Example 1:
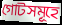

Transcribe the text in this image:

গোটসমূহে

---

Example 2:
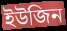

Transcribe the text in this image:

ইউজিন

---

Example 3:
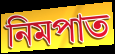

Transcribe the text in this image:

নিমপাত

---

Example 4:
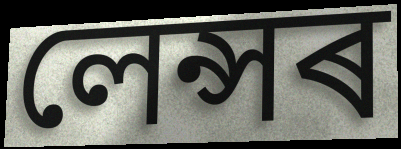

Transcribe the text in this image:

লেন্সৰ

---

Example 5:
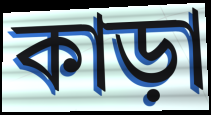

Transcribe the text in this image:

কাড়া